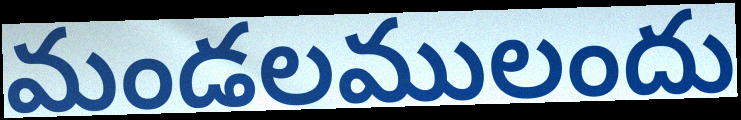
మండలములందు